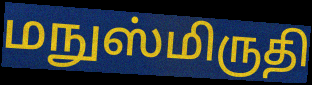
மநுஸ்மிருதி